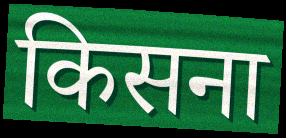
किसना